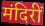
मंदिरीं